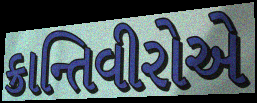
ક્રાન્તિવીરોએ